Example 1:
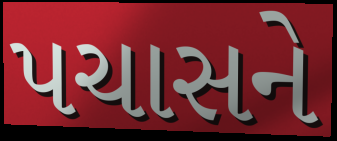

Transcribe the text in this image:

પચાસને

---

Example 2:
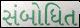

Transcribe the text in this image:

સંબોધિત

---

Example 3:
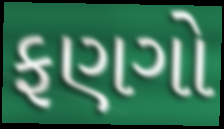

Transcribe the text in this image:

ફણગો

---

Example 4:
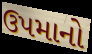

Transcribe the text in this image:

ઉપમાનો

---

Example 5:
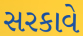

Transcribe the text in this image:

સરકાવે